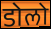
डोलो